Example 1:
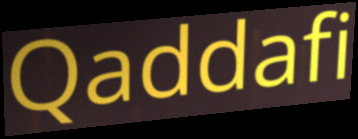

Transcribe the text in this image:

Qaddafi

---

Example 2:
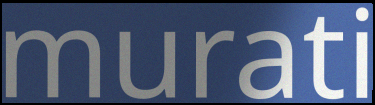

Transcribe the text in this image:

murati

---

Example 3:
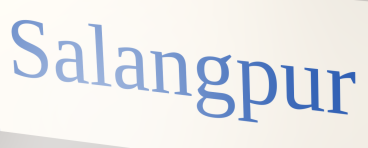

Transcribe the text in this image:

Salangpur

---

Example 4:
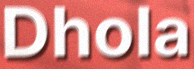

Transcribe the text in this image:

Dhola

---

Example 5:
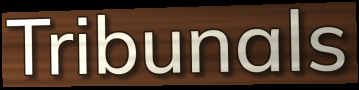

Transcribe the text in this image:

Tribunals